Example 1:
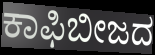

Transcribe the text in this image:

ಕಾಫಿಬೀಜದ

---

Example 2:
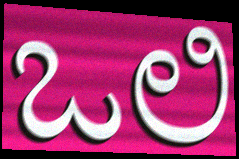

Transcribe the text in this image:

ಒಲಿ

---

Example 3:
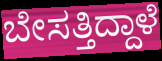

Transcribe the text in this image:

ಬೇಸತ್ತಿದ್ದಾಳೆ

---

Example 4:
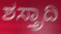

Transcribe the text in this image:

ಶಸ್ತ್ರಾದಿ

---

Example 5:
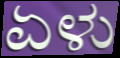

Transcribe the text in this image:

ಏಳು